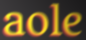
aole